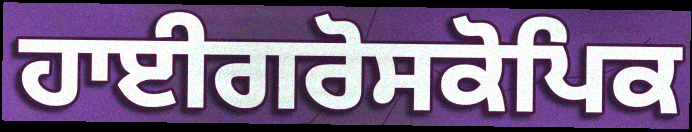
ਹਾਈਗਰੋਸਕੋਪਿਕ